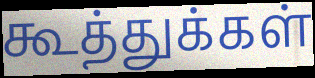
கூத்துக்கள்